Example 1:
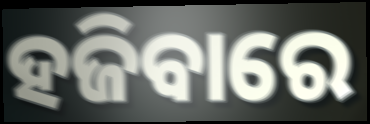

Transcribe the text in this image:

ହଜିବାରେ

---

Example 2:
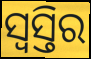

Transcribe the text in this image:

ସ୍ଵସ୍ତିର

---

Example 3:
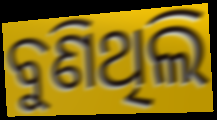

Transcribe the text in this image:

ବୁଣିଥିଲି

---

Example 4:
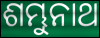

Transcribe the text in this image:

ଶମ୍ଭୁନାଥ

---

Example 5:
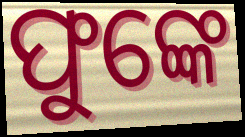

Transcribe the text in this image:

ଫୁଙ୍କେ